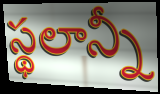
స్థలాన్నీ